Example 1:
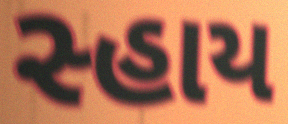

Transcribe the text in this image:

સ્હાય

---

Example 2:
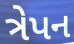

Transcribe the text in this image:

ત્રેપન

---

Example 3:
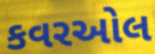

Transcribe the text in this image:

કવરઓલ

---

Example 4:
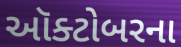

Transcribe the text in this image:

ઑક્ટોબરના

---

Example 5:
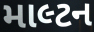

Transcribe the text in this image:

માલ્ટન